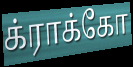
க்ராக்கோ